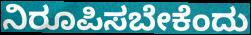
ನಿರೂಪಿಸಬೇಕೆಂದು